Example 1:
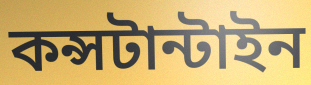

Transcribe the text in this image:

কন্সটান্টাইন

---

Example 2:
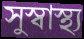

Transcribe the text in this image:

সুস্বাস্থ্য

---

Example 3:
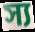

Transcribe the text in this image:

স্য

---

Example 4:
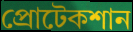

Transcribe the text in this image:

প্রোটেকশান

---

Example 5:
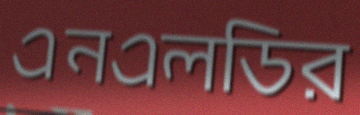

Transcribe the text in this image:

এনএলডির